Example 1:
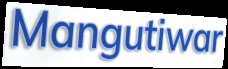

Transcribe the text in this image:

Mangutiwar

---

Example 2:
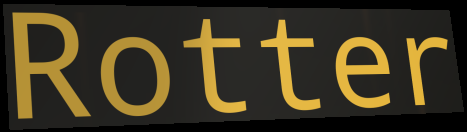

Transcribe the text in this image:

Rotter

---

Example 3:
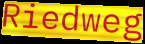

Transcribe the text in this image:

Riedweg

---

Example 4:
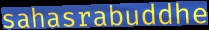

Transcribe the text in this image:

sahasrabuddhe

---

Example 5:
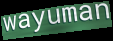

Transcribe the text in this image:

wayuman